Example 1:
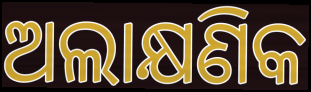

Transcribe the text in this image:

ଅଲାକ୍ଷଣିକ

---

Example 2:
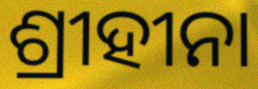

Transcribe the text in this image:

ଶ୍ରୀହୀନା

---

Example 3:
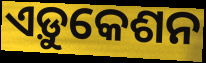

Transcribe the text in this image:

ଏଡ଼ୁକେଶନ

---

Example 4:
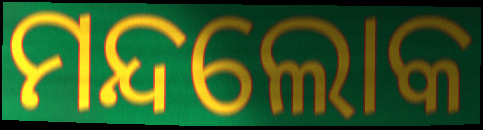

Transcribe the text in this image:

ମନ୍ଦଲୋକ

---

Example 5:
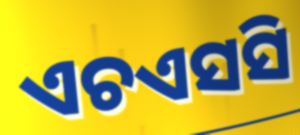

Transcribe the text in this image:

ଏଚଏସସି